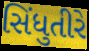
સિંધુતીરે